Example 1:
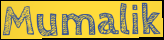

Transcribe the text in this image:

Mumalik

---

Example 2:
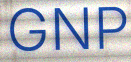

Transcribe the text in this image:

GNP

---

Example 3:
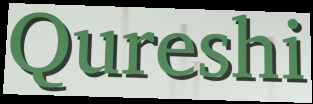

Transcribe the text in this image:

Qureshi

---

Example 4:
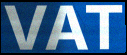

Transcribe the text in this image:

VAT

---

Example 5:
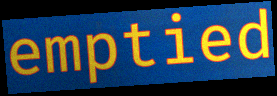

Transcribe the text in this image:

emptied